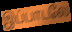
இப்பாடலே